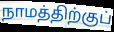
நாமத்திற்குப்